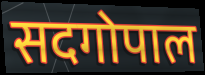
सदगोपाल